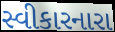
સ્વીકારનારા